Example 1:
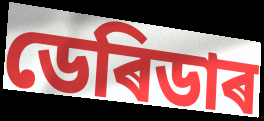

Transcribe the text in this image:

ডেৰিডাৰ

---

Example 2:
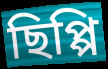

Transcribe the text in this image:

ছিপ্পি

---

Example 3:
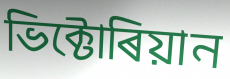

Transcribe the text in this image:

ভিক্টোৰিয়ান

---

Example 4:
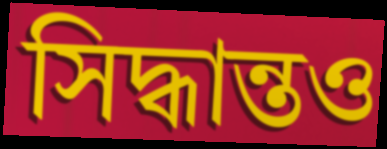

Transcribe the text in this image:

সিদ্ধান্তও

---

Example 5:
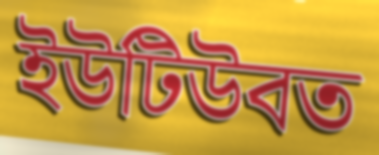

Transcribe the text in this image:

ইউটিউবত